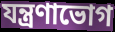
যন্ত্রণাভোগ